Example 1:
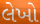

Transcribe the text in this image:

લેખો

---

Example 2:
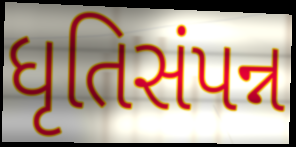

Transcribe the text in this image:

ધૃતિસંપન્ન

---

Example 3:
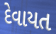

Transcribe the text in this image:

દેવાયત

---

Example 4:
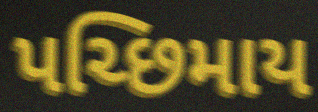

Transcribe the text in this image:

પચ્છિમાય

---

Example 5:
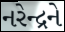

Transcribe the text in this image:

નરેન્દ્રને